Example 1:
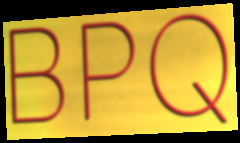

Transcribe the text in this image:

BPQ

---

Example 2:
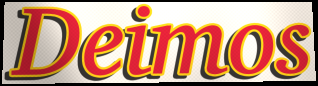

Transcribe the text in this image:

Deimos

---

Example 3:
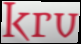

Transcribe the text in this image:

kru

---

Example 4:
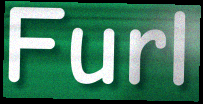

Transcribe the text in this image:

Furl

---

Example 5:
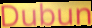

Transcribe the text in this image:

Dubun